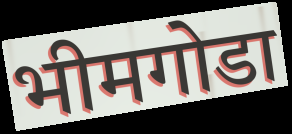
भीमगोडा